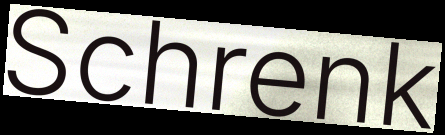
Schrenk